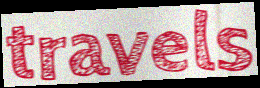
travels